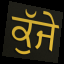
ਕੁੱਜੇ